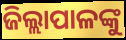
ଜିଲ୍ଲାପାଳଙ୍କୁ